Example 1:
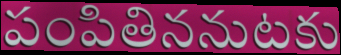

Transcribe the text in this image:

పంపితిననుటకు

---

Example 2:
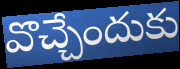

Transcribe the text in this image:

వొచ్చేందుకు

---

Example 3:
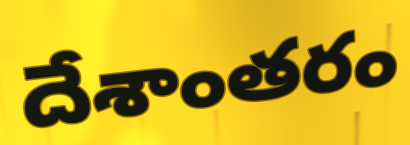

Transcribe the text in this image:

దేశాంతరం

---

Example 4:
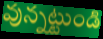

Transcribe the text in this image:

వున్నట్టుండి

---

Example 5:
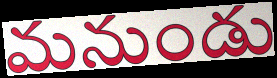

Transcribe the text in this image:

మనుండు